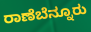
ರಾಣೆಬೆನ್ನೂರು